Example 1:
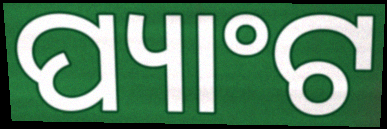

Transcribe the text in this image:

ପ୍ୟାଂଟ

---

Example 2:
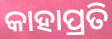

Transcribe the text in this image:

କାହାପ୍ରତି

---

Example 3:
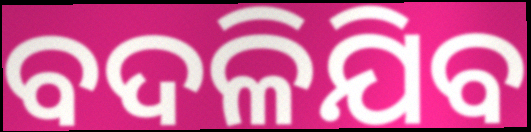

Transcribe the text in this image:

ବଦଳିଯିବ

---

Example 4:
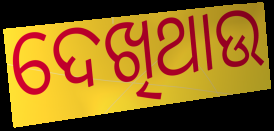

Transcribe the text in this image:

ଦେଖିଥାଉ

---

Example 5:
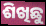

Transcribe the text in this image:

ଶିଖିଛୁ